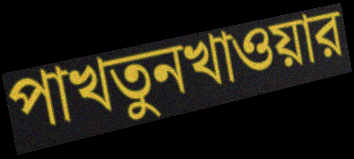
পাখতুনখাওয়ার